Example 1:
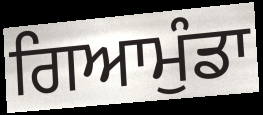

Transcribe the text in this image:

ਗਿਆਮੁੰਡਾ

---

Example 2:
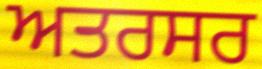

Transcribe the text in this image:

ਅਤਰਸਰ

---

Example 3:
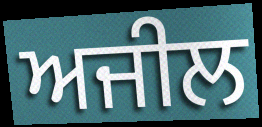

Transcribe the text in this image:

ਅਜੀਲ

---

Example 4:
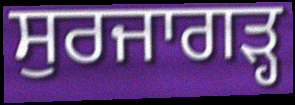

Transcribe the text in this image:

ਸੁਰਜਾਗੜ੍ਹ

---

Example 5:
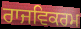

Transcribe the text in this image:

ਰਾਜਵਿਕਰਮ